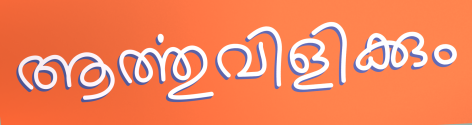
ആൎത്തുവിളിക്കും